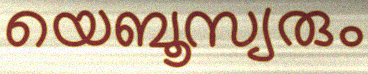
യെബൂസ്യരും